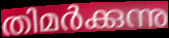
തിമർക്കുന്നു